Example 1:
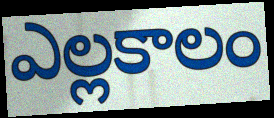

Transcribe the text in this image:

ఎల్లకాలం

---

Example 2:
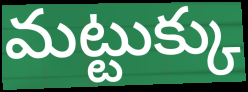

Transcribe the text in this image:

మట్టుక్కు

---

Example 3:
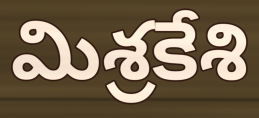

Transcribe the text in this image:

మిశ్రకేశి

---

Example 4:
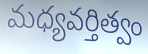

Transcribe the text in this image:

మధ్యవర్తిత్వం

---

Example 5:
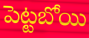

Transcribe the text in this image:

పెట్టబోయి